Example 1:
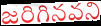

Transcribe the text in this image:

జరిగినవని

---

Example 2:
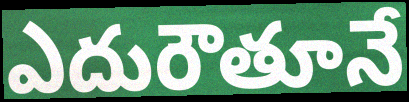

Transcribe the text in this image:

ఎదురౌతూనే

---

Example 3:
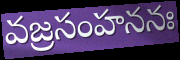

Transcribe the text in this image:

వజ్రసంహననః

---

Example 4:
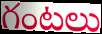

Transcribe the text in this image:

గంటలు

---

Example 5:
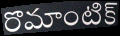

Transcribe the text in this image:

రొమాంటిక్